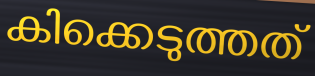
കിക്കെടുത്തത്